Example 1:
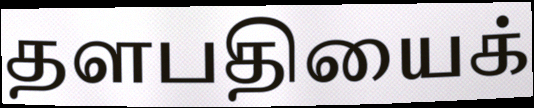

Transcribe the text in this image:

தளபதியைக்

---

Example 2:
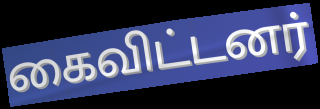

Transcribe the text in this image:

கைவிட்டனர்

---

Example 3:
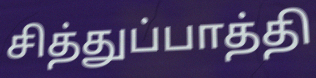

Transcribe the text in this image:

சித்துப்பாத்தி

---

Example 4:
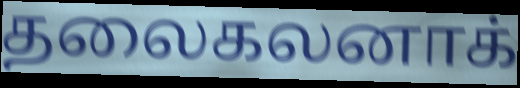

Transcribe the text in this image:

தலைகலனாக்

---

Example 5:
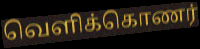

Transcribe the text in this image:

வெளிக்கொணர்